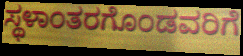
ಸ್ಥಳಾಂತರಗೊಂಡವರಿಗೆ